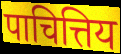
पाचित्तिय